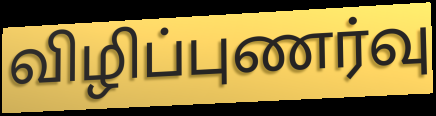
விழிப்புணர்வு